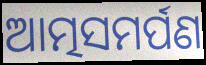
ଆତ୍ମସମର୍ପଣ